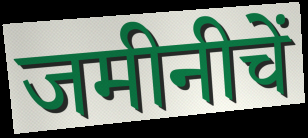
जमीनीचें